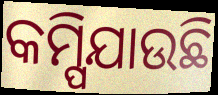
କମ୍ପିଯାଉଛି